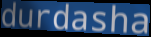
durdasha